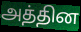
அத்தின